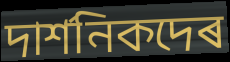
দাৰ্শনিকদেৰ